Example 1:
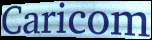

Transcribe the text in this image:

Caricom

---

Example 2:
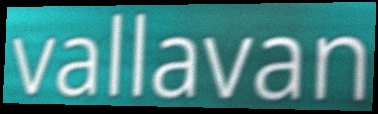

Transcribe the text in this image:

vallavan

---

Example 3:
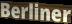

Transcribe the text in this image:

Berliner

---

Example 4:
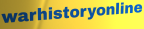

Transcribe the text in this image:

warhistoryonline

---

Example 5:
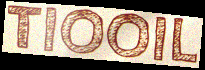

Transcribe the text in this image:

TIOOIL